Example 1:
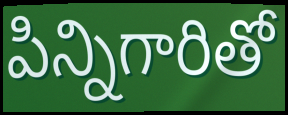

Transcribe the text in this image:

పిన్నిగారితో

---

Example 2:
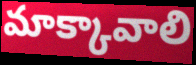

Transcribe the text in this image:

మాక్కావాలి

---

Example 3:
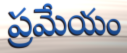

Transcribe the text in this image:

ప్రమేయం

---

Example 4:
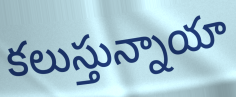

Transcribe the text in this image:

కలుస్తున్నాయా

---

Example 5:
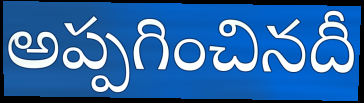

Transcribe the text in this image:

అప్పగించినదీ